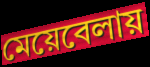
মেয়েবেলায়